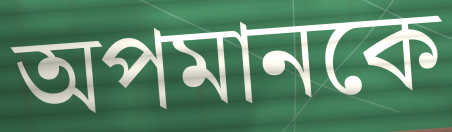
অপমানকে